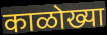
काळोख्या